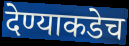
देण्याकडेच